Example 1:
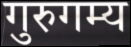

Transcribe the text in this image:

गुरुगम्य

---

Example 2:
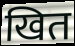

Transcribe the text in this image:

खित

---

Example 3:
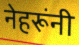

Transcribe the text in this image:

नेहरूंनी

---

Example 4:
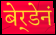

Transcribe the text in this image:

बेर्डेनं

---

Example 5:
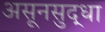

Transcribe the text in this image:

असूनसुद्धा